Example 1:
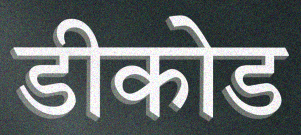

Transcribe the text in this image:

डीकोड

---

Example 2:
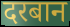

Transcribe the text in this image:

दरबान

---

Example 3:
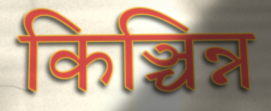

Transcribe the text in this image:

किञ्चिन्न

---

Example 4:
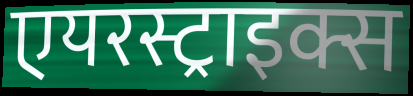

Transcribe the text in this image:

एयरस्ट्राइक्स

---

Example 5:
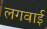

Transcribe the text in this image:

लगवाई